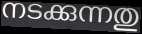
നടക്കുന്നതു